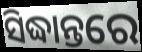
ସିଦ୍ଧାନ୍ତରେ